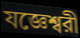
যজ্ঞেশ্বরী